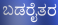
ಬಡರೈತರ